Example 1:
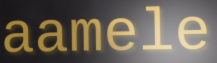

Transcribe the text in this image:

aamele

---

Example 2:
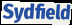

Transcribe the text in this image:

Sydfield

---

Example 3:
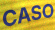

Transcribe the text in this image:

CASO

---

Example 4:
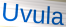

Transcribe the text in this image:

Uvula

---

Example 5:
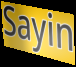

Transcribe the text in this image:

Sayin